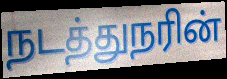
நடத்துநரின்